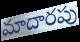
మాదారపు